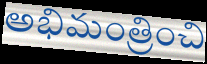
అభిమంత్రించి